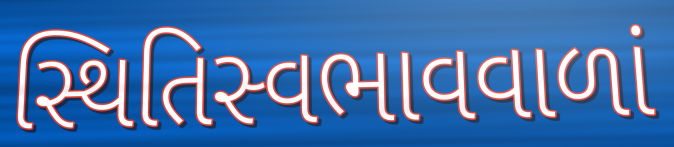
સ્થિતિસ્વભાવવાળાં